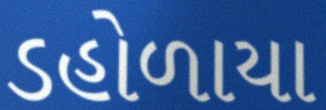
ડહોળાયા